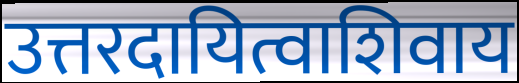
उत्तरदायित्वाशिवाय